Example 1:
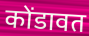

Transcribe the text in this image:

कोंडावत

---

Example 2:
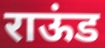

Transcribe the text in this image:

राऊंड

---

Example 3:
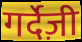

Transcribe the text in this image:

गर्देज़ी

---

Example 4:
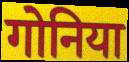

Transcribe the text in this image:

गोनिया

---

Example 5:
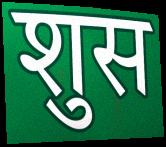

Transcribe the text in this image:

शुस